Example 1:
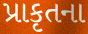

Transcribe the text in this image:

પ્રાકૃતના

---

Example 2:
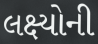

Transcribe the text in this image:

લક્ષ્યોની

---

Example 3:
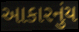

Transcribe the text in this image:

આકારનુંય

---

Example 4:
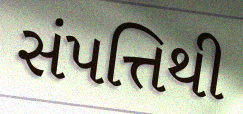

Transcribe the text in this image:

સંપત્તિથી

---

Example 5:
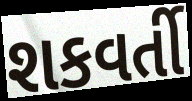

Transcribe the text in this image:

શકવર્તી